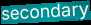
secondary